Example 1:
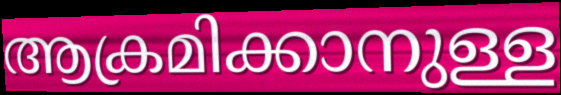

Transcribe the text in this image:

ആക്രമിക്കാനുള്ള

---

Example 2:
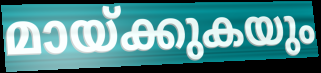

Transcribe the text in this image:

മായ്ക്കുകയും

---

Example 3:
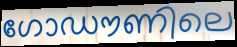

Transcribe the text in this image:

ഗോഡൗണിലെ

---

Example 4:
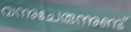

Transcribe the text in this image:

വന്നുചേരുന്നുണ്ട്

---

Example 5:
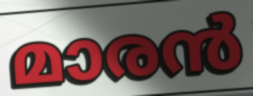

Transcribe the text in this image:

മാരൻ